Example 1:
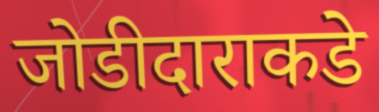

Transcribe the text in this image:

जोडीदाराकडे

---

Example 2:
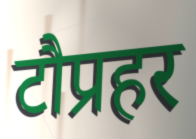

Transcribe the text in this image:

टौप्रहर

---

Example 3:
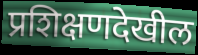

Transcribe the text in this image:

प्रशिक्षणदेखील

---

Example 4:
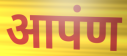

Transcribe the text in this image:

आपंण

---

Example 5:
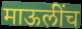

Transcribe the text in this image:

माऊलींच